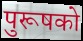
पुरूषको